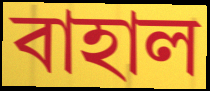
বাহাল